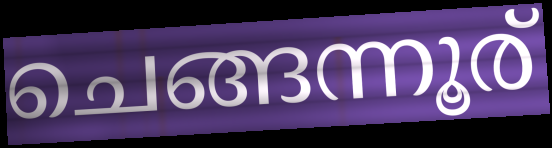
ചെങ്ങന്നൂര്